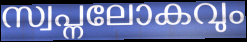
സ്വപ്നലോകവും